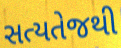
સત્યતેજથી